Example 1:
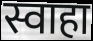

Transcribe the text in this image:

स्वाहा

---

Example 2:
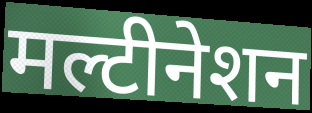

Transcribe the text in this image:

मल्टीनेशन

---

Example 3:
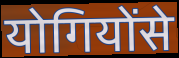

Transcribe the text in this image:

योगियोंसे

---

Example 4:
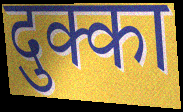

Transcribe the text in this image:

दुक्‍का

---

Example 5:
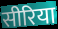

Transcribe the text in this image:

सीरिया